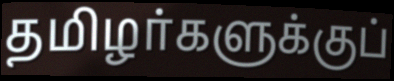
தமிழர்களுக்குப்